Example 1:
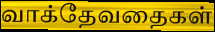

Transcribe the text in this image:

வாக்தேவதைகள்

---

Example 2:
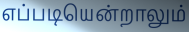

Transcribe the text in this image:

எப்படியென்றாலும்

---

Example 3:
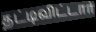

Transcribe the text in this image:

தட்டிவிட்டார்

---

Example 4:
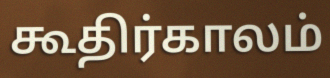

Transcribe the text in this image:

கூதிர்காலம்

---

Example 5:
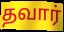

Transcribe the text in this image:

தவார்